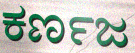
ಕರ್ಣಜ